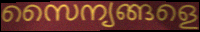
സൈന്യങ്ങളെ